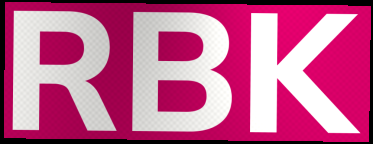
RBK